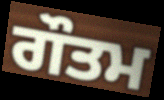
ਗੌਤਮ